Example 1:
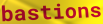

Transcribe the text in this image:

bastions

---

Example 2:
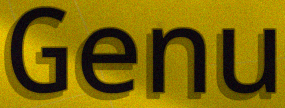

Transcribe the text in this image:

Genu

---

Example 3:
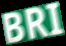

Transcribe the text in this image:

BRI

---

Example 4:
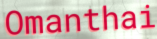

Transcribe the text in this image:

Omanthai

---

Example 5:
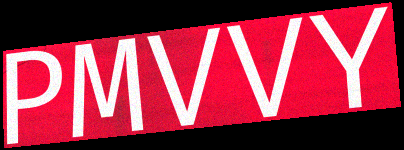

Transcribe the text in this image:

PMVVY